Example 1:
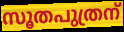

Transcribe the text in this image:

സൂതപുത്രന്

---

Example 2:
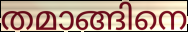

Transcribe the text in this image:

തമാങ്ങിനെ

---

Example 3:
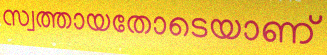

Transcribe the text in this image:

സ്വത്തായതോടെയാണ്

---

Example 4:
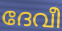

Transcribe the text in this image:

ദേവീ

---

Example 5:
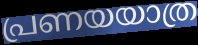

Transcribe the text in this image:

പ്രണയയാത്ര